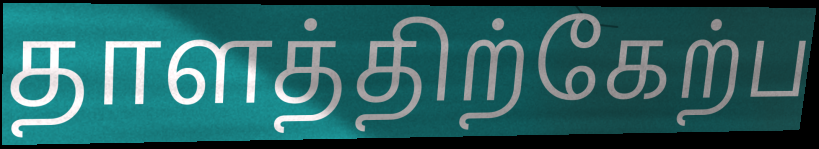
தாளத்திற்கேற்ப